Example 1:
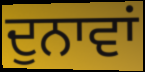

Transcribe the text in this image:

ਦੁਨਾਵਾਂ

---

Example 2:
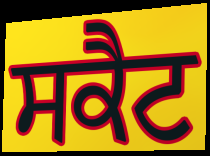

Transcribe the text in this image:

ਸਕੈਟ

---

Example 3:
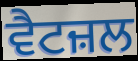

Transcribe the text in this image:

ਵੈਟਜ਼ਲ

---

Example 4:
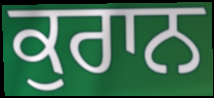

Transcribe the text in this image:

ਕੁਰਾਨ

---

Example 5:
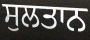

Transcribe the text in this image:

ਸੁਲਤਾਨ